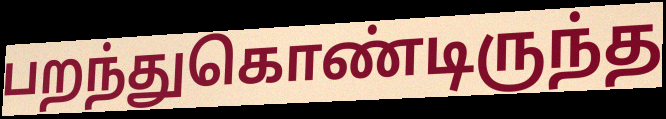
பறந்துகொண்டிருந்த